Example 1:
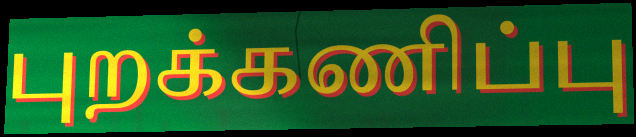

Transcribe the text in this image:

புறக்கணிப்பு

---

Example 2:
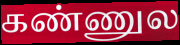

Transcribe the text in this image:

கண்ணுல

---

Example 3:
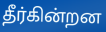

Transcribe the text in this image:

தீர்கின்றன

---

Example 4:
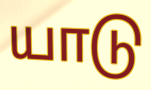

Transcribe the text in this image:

யாடு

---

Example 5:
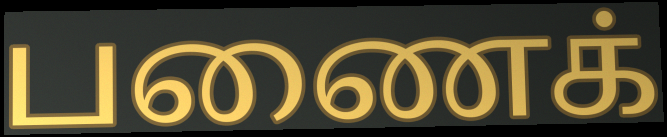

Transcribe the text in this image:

பணைக்